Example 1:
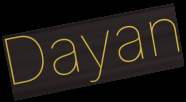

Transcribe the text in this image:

Dayan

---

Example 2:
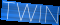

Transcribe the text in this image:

TWIN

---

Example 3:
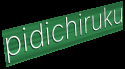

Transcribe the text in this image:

pidichiruku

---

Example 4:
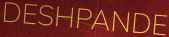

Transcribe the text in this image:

DESHPANDE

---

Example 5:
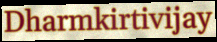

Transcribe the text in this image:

Dharmkirtivijay